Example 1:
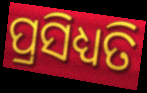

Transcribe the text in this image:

ପ୍ରସିଧ୍ୟତି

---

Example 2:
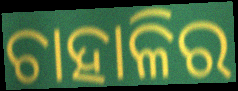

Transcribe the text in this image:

ଚାହାଳିର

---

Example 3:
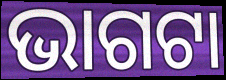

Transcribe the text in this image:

ଭାଗଟା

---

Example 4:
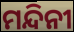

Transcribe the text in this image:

ମନ୍ଦିନୀ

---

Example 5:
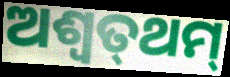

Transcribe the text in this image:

ଅଶ୍ୱତ୍‌ଥମ୍